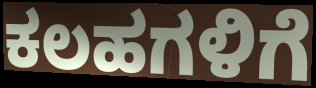
ಕಲಹಗಳಿಗೆ